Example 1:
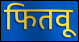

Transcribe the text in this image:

फितवू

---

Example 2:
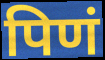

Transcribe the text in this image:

पिणं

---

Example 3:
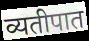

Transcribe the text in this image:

व्यतीपात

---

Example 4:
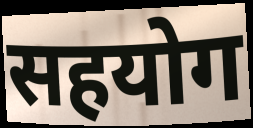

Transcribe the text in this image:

सहयोग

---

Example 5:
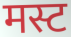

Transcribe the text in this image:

मस्ट